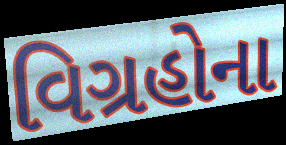
વિગ્રહોના